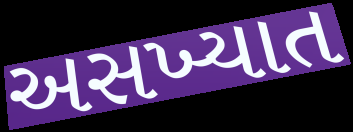
અસખ્યાત